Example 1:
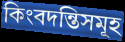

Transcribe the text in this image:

কিংবদন্তিসমূহ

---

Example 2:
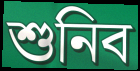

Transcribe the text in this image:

শুনিব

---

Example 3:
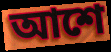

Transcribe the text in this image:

আশে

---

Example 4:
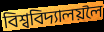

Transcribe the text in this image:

বিশ্ববিদ্যালয়লৈ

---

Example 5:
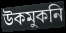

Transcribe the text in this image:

উকমুকনি